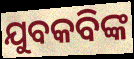
ଯୁବକବିଙ୍କ